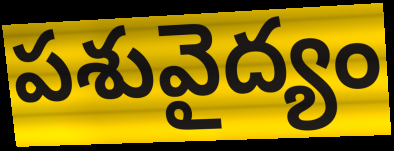
పశువైద్యం